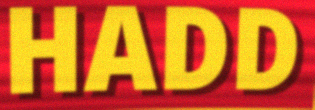
HADD